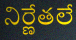
నిర్ణేతలే